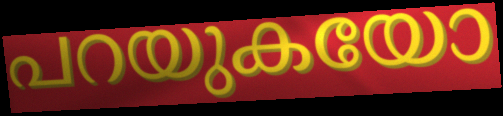
പറയുകയോ